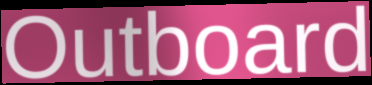
Outboard